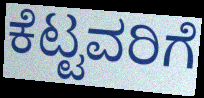
ಕೆಟ್ಟವರಿಗೆ